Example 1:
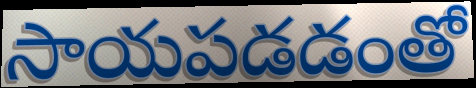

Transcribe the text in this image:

సాయపడడంతో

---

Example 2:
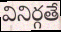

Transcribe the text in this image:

వినిర్గతే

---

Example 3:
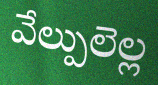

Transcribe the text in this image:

వేల్పులెల్ల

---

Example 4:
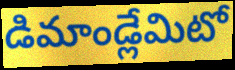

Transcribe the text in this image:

డిమాండ్లేమిటో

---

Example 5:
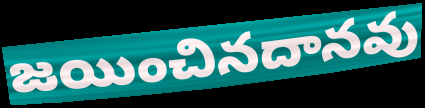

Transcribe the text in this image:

జయించినదానవు